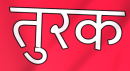
तुरक